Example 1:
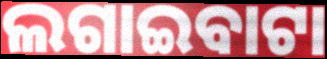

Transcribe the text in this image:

ଲଗାଇବାଟା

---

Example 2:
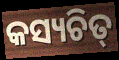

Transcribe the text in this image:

କସ୍ୟଚିତ୍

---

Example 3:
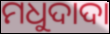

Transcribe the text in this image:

ମଧୁଦାଦା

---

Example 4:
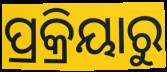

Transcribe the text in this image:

ପ୍ରକ୍ରିୟାରୁ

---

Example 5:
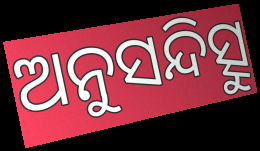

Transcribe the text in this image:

ଅନୁସନ୍ଦିତ୍ସୁ